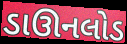
ડાઊનલોડ